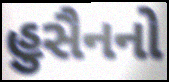
હુસૈનનો